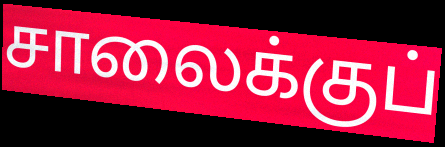
சாலைக்குப்